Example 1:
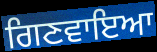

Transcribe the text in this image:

ਗਿਣਵਾਇਆ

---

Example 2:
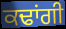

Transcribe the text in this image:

ਕਢਾਂਗੀ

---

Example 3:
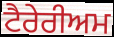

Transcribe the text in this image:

ਟੈਰੇਰੀਅਮ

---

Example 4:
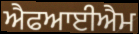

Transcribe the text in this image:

ਐਫਆਈਐਮ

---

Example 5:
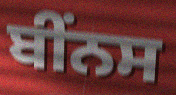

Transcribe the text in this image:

ਬੀਂਨਸ